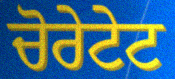
ਚੋਰੇਟੇਟ